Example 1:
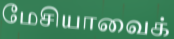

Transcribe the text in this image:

மேசியாவைக்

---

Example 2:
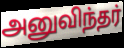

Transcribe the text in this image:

அனுவிந்தர்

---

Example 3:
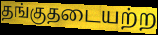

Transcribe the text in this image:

தங்குதடையற்ற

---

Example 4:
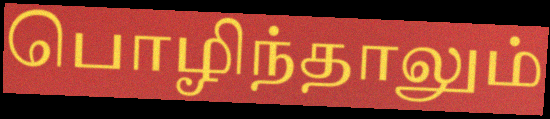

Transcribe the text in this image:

பொழிந்தாலும்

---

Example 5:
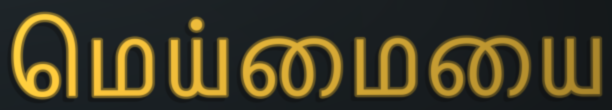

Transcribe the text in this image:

மெய்மையை